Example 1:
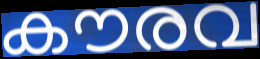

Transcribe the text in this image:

കൗരവ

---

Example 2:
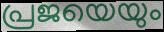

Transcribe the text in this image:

പ്രജയെയും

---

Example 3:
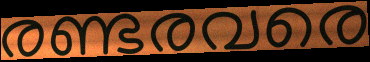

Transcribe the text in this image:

രണ്ടരവരെ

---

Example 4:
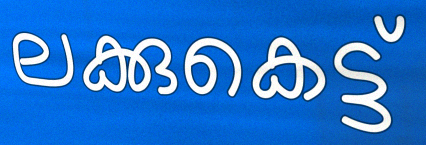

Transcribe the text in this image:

ലക്കുകെട്ട്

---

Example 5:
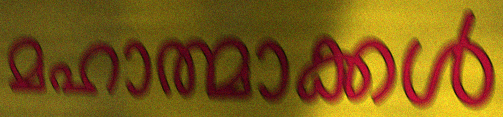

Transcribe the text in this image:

മഹാത്മാക്കൾ